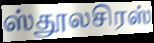
ஸ்தூலசிரஸ்